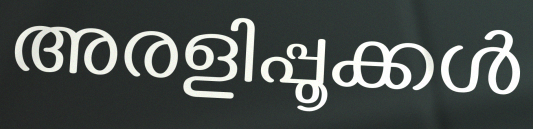
അരളിപ്പൂക്കൾ